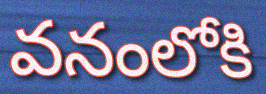
వనంలోకి